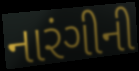
નારંગીની